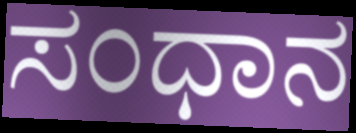
ಸಂಧಾನ